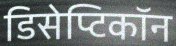
डिसेप्टिकॉन